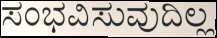
ಸಂಭವಿಸುವುದಿಲ್ಲ